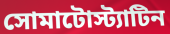
সোমাটোস্ট্যাটিন